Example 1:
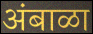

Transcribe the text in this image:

अंबाळा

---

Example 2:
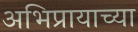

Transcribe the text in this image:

अभिप्रायाच्या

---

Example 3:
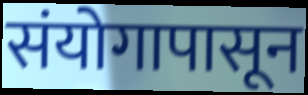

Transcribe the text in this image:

संयोगापासून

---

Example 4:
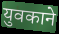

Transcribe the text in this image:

युवकाने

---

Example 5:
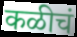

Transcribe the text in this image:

कळीचं